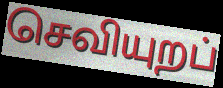
செவியுறப்